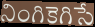
నింగికెగిసే